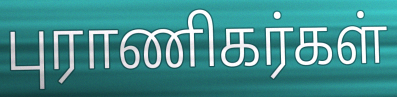
புராணிகர்கள்